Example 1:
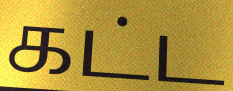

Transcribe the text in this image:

கட்ட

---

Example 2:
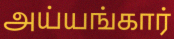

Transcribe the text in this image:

அய்யங்கார்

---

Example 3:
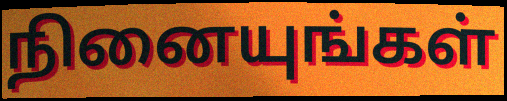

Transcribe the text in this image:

நினையுங்கள்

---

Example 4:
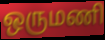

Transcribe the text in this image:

ஒருமணி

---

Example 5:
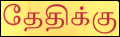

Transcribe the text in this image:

தேதிக்கு